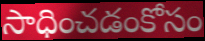
సాధించడంకోసం